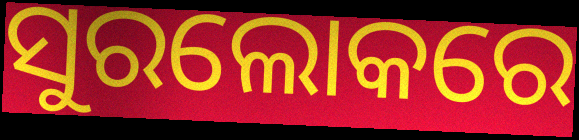
ସୁରଲୋକରେ